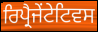
ਰਿਪ੍ਰੈਜੇਂਟੇਟਿਵਸ